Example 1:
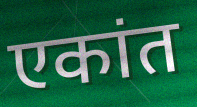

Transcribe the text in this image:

एकांत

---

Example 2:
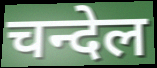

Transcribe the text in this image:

चन्देल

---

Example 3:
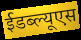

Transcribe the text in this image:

ईडब्ल्यूएस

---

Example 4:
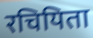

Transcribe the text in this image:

रचियिता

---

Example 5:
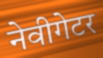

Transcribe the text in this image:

नेवीगेटर